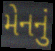
મેનનું